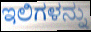
ಇಲಿಗಳನ್ನು